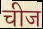
चीज